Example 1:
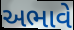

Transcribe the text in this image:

અભાવે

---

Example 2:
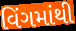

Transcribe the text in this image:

વિંગમાંથી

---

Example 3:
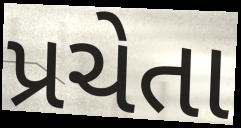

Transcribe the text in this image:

પ્રચેતા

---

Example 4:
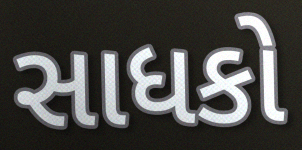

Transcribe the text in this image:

સાધકો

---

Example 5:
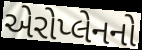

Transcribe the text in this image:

એરોપ્લેનનો